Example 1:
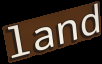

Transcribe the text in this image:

land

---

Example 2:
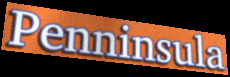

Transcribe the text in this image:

Penninsula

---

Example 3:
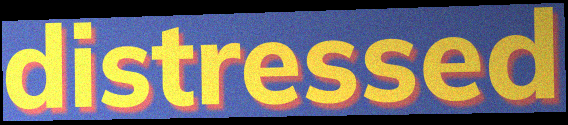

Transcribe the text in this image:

distressed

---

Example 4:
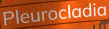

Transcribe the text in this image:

Pleurocladia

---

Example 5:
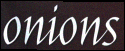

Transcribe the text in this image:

onions